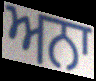
ਅਨਾ